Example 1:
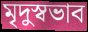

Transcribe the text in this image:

মৃদুস্বভাব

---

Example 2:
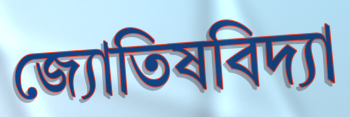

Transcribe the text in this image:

জ্যোতিষবিদ্যা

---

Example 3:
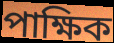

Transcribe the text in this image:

পাক্ষিক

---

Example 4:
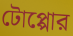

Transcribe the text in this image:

টোপ্পোর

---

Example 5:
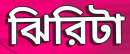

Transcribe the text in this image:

ঝিরিটা